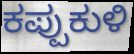
ಕಪ್ಪುಕುಳಿ